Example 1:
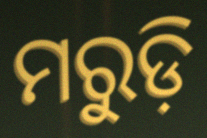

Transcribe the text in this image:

ମରୁଡ଼ି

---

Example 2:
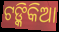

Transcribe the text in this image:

ଟଙ୍କିକିଆ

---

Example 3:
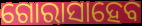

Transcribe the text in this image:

ଗୋରାସାହେବ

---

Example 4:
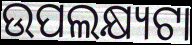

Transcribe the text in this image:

ଉପଲକ୍ଷ୍ୟଟା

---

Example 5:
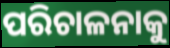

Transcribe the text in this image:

ପରିଚାଳନାକୁ